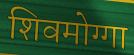
शिवमोग्गा